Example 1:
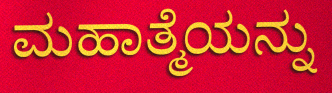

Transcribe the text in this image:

ಮಹಾತ್ಮೆಯನ್ನು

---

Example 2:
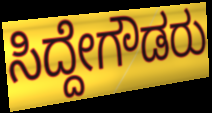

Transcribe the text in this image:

ಸಿದ್ದೇಗೌಡರು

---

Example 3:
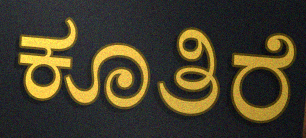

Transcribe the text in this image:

ಕೂತಿರೆ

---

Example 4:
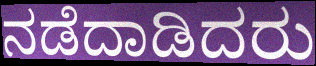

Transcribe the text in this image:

ನಡೆದಾಡಿದರು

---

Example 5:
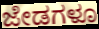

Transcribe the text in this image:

ಜೇಡಗಳೂ